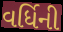
વર્ધિની